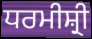
ਧਰਮੀਸ਼੍ਰੀ